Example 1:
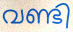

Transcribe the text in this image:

വണ്ടി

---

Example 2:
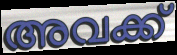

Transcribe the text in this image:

അവക്ക്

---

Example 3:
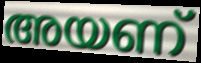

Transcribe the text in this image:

അയണ്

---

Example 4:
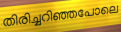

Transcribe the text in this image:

തിരിച്ചറിഞ്ഞപോലെ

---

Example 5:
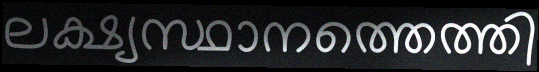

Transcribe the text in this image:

ലക്ഷ്യസ്ഥാനത്തെത്തി